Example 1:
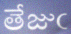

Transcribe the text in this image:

తేజుఁ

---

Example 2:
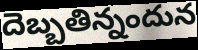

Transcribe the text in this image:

దెబ్బతిన్నందున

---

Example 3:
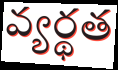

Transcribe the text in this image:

వ్యర్థత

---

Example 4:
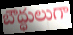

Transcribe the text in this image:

బౌద్ధులుగా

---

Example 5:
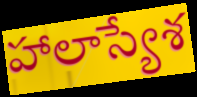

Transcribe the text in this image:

హాలాస్యేశ